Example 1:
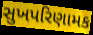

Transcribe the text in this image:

સુખપરિણામક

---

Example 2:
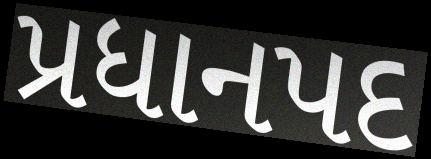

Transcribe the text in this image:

પ્રધાનપદ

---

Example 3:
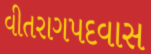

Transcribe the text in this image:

વીતરાગપદવાસ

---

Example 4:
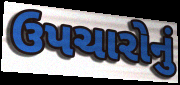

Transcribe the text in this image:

ઉપચારોનું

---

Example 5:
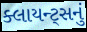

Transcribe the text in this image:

ક્લાયન્ટ્સનું